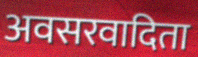
अवसरवादिता